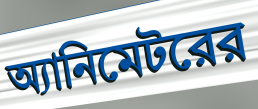
অ্যানিমেটরের